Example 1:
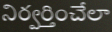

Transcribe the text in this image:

నిర్వర్తించేలా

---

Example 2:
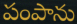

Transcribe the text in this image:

పంపాను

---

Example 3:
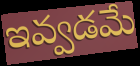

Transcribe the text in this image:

ఇవ్వడమే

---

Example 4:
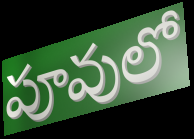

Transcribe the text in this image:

పూవులో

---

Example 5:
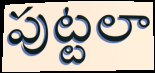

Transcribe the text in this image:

పుట్టలా